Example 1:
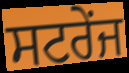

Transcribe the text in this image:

ਸਟਰੇਂਜ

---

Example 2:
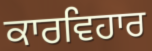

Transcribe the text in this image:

ਕਾਰਵਿਹਾਰ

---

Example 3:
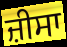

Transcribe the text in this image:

ਜ਼ੀਸਾ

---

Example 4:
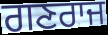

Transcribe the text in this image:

ਗਣਰਾਜ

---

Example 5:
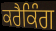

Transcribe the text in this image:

ਕਰੈਕਿੰਗ